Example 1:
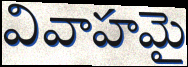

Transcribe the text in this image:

వివాహమై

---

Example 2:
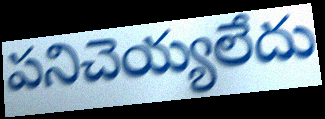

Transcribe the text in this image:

పనిచెయ్యలేదు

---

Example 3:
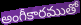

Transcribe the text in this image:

అంగీకారముతో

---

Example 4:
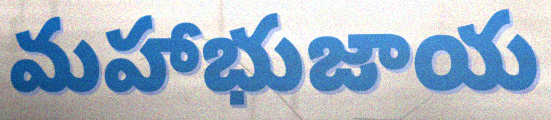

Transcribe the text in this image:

మహాభుజాయ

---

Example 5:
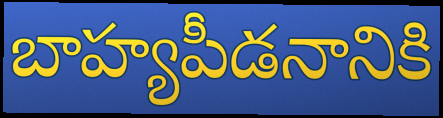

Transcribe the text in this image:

బాహ్యపీడనానికి